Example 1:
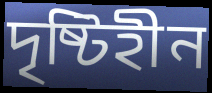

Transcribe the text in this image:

দৃষ্টিহীন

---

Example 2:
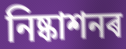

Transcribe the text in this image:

নিষ্কাশনৰ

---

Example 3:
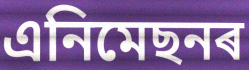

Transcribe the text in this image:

এনিমেছনৰ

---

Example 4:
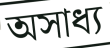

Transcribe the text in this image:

অসাধ্য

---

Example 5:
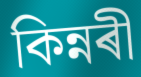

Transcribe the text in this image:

কিন্নৰী